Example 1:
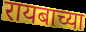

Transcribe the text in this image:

रायबाच्या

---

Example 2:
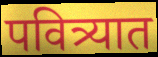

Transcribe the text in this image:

पवित्र्यात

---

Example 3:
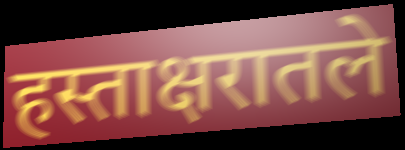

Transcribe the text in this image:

हस्ताक्षरातले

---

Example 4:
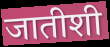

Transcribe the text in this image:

जातीशी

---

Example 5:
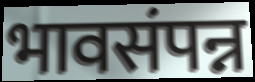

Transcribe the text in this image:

भावसंपन्न